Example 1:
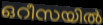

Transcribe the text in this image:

ഒറീസയിൽ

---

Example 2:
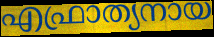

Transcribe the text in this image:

എഫ്രാത്യനായ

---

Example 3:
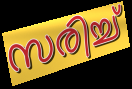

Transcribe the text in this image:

സരിച്ച്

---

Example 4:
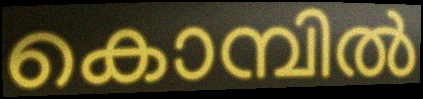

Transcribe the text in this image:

കൊമ്പിൽ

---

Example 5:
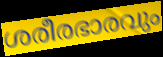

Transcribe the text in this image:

ശരീരഭാരവും